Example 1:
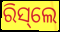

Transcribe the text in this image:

ରିସ୍‌ଲେ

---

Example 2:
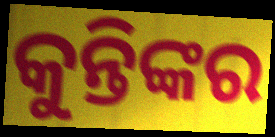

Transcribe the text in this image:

କୁନ୍ତିଙ୍କର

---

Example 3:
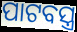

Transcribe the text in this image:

ପାଟବସ୍ତ୍ର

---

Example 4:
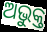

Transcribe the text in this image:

ଅଭୁକ୍ତ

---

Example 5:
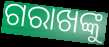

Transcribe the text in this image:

ଗରାଖଙ୍କୁ